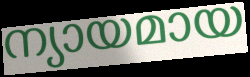
ന്യായമായ